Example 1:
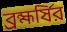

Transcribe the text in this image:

ব্রহ্মর্ষির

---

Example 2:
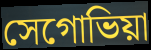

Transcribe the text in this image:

সেগোভিয়া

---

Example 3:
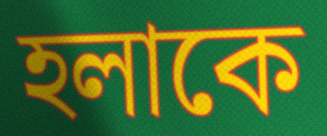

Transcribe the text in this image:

হলাকে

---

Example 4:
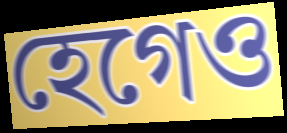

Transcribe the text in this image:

হেগেও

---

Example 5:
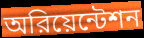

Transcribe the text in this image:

অরিয়েন্টেশন